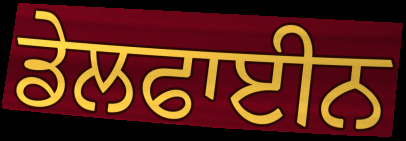
ਡੇਲਫਾਈਨ